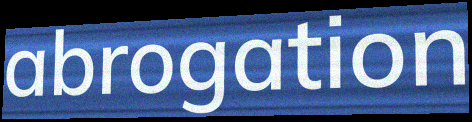
abrogation